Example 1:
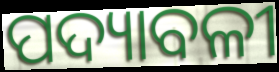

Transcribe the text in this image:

ପଦ୍ୟାବଳୀ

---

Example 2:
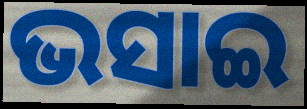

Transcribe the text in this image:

ଭସାଇ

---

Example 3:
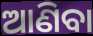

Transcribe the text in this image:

ଆଣିବା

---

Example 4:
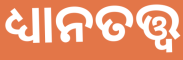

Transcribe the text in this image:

ଧ୍ୟାନତତ୍ତ୍ୱ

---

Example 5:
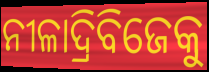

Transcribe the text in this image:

ନୀଳାଦ୍ରିବିଜେକୁ